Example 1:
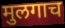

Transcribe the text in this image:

मुलगाच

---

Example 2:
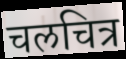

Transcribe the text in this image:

चलचित्र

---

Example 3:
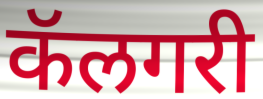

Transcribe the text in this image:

कॅलगरी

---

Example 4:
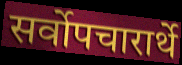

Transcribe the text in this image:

सर्वोपचारार्थे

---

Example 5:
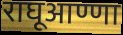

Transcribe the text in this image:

राघूआण्णा